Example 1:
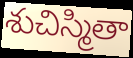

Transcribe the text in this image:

శుచిస్మితా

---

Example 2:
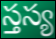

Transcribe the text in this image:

స్తస్య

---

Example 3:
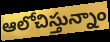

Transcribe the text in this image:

ఆలోచిస్తున్నాం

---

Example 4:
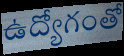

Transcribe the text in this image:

ఉద్యోగంతో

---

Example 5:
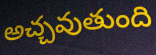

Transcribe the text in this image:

అచ్చవుతుంది